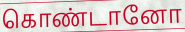
கொண்டானோ